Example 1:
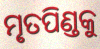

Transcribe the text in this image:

ମୃତପିଣ୍ଡକୁ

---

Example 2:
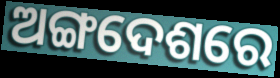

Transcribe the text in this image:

ଅଙ୍ଗଦେଶରେ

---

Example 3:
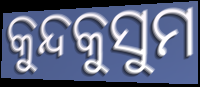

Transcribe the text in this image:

କୁନ୍ଦକୁସୁମ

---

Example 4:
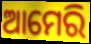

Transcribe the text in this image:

ଆମେରି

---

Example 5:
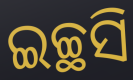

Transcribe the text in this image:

ଇଚ୍ଛସି